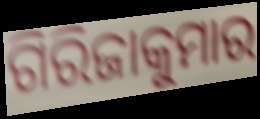
ଗିରିଜାକୁମାର